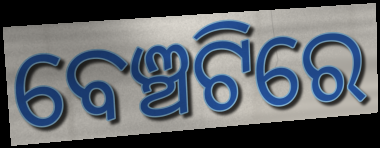
ବେଞ୍ଚଟିରେ